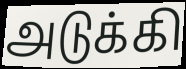
அடுக்கி